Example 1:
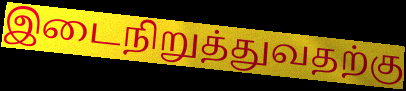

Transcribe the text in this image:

இடைநிறுத்துவதற்கு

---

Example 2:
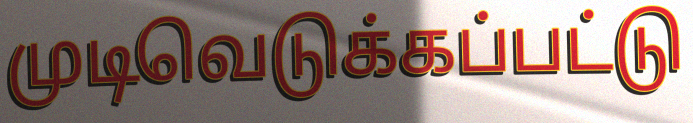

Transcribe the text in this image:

முடிவெடுக்கப்பட்டு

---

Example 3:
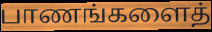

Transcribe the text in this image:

பாணங்களைத்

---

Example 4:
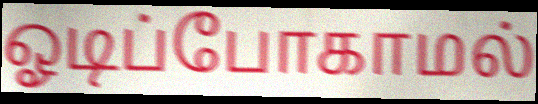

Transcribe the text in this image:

ஓடிப்போகாமல்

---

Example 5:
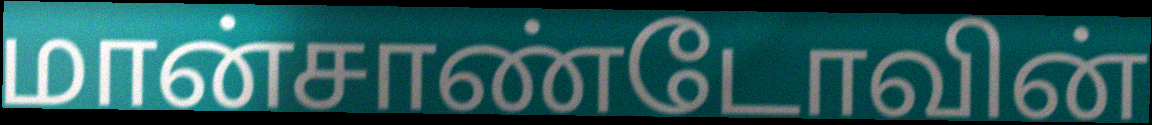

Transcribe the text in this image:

மான்சாண்டோவின்